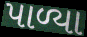
પાળ્યા